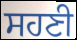
ਸਹਣੀ